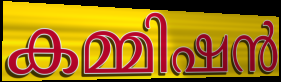
കമ്മിഷൻ